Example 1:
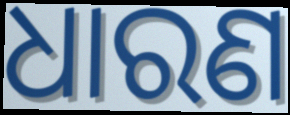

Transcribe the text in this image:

ଧାରଣ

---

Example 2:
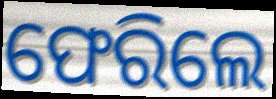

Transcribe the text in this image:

ଫେରିଲେ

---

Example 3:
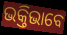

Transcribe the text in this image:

ଭକ୍ତିଭାବେ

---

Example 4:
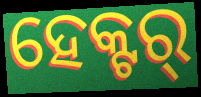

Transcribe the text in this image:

ହେକ୍ଟର୍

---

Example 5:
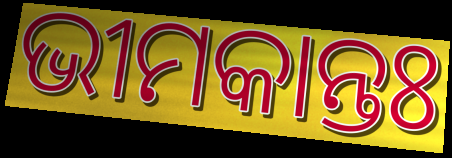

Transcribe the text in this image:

ଭୀମକାନ୍ତଃ